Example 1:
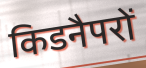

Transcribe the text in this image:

किडनैपरों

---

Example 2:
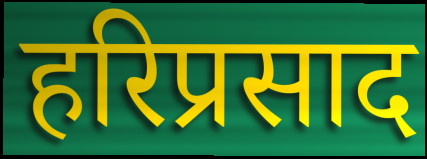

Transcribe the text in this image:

हरिप्रसाद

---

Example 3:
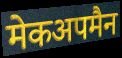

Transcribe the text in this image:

मेकअपमैन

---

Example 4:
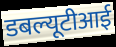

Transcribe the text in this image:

डबल्यूटीआई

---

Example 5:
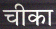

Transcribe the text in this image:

चीका